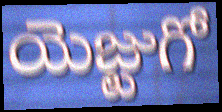
యెజ్టుగో